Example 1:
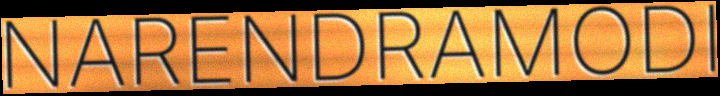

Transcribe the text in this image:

NARENDRAMODI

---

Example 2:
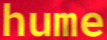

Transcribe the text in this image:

hume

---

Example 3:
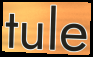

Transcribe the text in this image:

tule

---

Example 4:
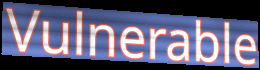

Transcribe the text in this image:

Vulnerable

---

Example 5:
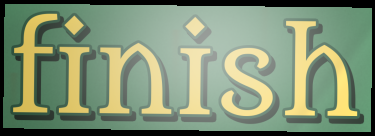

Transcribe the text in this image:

finish